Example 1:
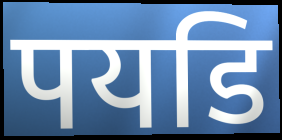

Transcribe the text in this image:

पयडि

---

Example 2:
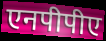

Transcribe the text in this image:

एनपीपीए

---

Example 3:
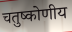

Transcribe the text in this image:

चतुष्कोणीय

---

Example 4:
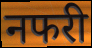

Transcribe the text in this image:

नफरी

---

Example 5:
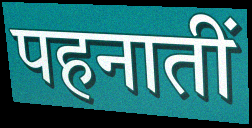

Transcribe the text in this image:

पहनातीं